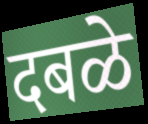
दबळे